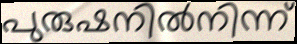
പുരുഷനിൽനിന്ന്